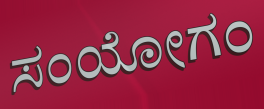
ಸಂಯೋಗಂ